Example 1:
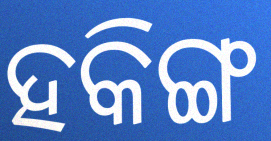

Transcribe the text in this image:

ହକିଙ୍ଗ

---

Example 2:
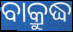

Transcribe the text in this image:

ବାକ୍ରୁଦ୍ଧ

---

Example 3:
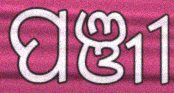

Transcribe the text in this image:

ପଞ୍ଜୀ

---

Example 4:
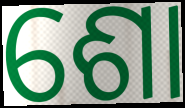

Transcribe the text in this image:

ଶୋ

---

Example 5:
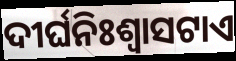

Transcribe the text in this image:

ଦୀର୍ଘନିଃଶ୍ୱାସଟାଏ